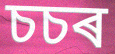
চচৰ